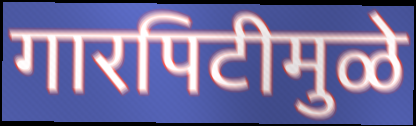
गारपिटीमुळे